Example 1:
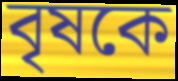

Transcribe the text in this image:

বৃষকে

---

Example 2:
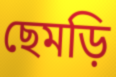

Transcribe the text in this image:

ছেমড়ি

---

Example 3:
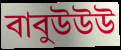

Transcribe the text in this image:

বাবুউউউ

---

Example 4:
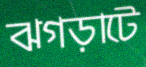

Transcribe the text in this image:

ঝগড়াটে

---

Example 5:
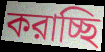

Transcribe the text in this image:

করাচ্ছি